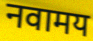
नवामय